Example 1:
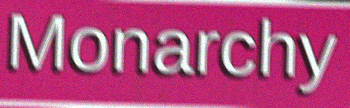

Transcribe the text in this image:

Monarchy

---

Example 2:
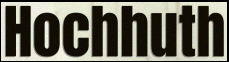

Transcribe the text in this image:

Hochhuth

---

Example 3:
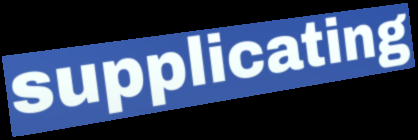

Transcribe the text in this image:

supplicating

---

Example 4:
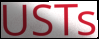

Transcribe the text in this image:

USTs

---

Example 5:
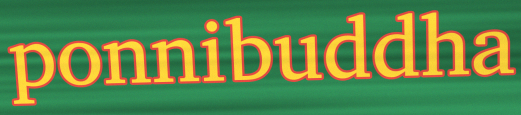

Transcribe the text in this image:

ponnibuddha